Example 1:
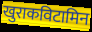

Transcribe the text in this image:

खुराकविटामिन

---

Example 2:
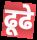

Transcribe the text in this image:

ढूढे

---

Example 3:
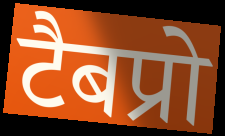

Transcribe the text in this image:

टैबप्रो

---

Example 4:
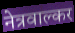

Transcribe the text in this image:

नेत्रवाल्कर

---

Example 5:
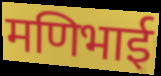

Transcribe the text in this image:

मणिभाई